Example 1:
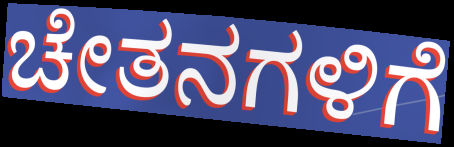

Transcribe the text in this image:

ಚೇತನಗಳಿಗೆ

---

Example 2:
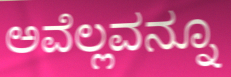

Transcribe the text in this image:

ಅವೆಲ್ಲವನ್ನೂ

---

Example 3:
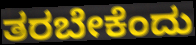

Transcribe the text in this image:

ತರಬೇಕೆಂದು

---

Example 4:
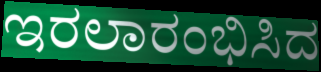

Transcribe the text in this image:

ಇರಲಾರಂಭಿಸಿದ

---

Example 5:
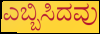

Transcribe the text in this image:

ಎಬ್ಬಿಸಿದವು